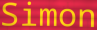
Simon